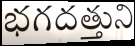
భగదత్తుని